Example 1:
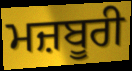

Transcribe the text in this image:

ਮਜ਼ਬੂਰੀ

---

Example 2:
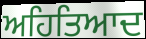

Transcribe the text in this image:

ਅਹਿਤਿਆਦ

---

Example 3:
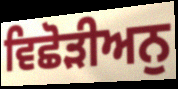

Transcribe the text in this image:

ਵਿਛੋੜੀਅਨੁ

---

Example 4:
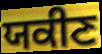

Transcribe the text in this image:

ਯਕੀਣ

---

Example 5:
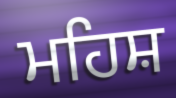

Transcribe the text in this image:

ਮਹਿਸ਼